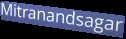
Mitranandsagar